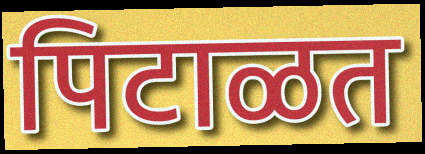
पिटाळत